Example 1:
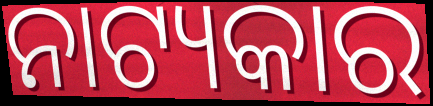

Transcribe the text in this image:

ନାଟ୍ୟକାର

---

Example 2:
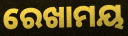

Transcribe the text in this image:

ରେଖାମୟ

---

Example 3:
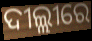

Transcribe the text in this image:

ଦୀଲ୍ଲୀରେ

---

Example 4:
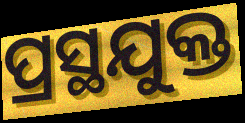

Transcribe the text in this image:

ପ୍ରସ୍ଥଯୁକ୍ତ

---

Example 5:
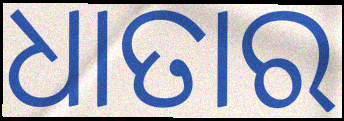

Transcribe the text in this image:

ଧାତାର